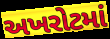
અખરોટમાં